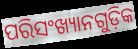
ପରିସଂଖ୍ୟାନଗୁଡ଼ିକ